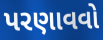
પરણાવવો